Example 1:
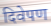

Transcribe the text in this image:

दिवेपण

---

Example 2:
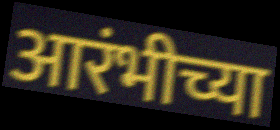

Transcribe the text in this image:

आरंभीच्या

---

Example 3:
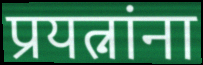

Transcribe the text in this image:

प्रयत्नांना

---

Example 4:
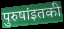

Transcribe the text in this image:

पुरुषांइतकी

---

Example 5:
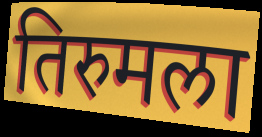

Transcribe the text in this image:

तिरुमला